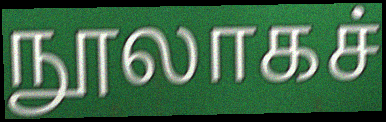
நூலாகச்